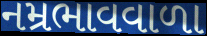
નમ્રભાવવાળા